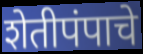
शेतीपंपाचे